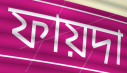
ফায়দা